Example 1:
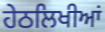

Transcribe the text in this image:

ਹੇਠਲਿਖੀਆਂ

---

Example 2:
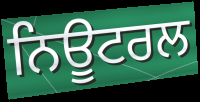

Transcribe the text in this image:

ਨਿਊਟਰਲ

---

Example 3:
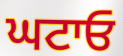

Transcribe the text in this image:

ਘਟਾਓ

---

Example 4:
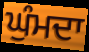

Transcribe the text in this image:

ਘੁੰਮਦਾ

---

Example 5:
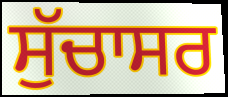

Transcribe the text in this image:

ਸੁੱਚਾਸਰ